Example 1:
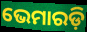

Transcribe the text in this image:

ଭେମାରଡ଼ି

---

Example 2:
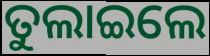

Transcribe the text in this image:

ତୁଲାଇଲେ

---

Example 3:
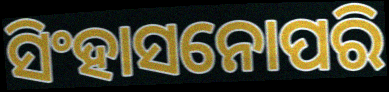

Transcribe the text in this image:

ସିଂହାସନୋପରି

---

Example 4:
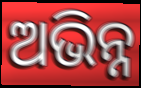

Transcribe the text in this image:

ଅଭିନ୍ନ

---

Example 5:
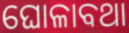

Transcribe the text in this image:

ଘୋଳାବଥା